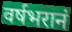
वर्षभरानं